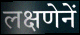
लक्षणेनें